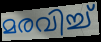
മരവിച്ച്